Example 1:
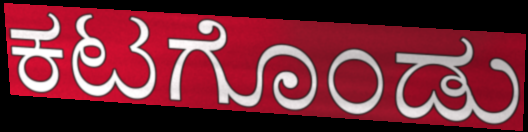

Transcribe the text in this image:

ಕಟಗೊಂಡು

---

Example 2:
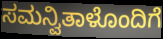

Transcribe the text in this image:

ಸಮನ್ವಿತಾಳೊಂದಿಗೆ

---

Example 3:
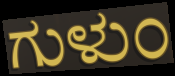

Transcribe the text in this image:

ಗುಳುಂ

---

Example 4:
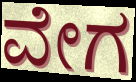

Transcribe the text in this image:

ವೇಗ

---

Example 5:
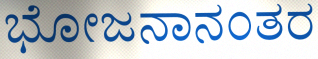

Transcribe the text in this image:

ಭೋಜನಾನಂತರ